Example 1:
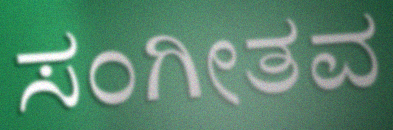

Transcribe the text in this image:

ಸಂಗೀತವ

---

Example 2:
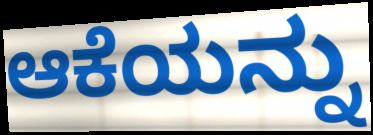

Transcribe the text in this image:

ಆಕೆಯನ್ನು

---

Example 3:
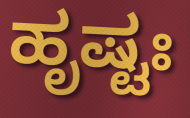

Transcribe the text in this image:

ಹೃಷ್ಟಃ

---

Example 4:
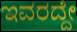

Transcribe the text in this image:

ಇವರದ್ದೇ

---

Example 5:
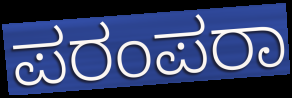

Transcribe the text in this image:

ಪರಂಪರಾ